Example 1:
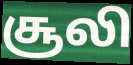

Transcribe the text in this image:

சூலி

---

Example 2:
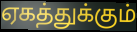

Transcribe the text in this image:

ஏகத்துக்கும்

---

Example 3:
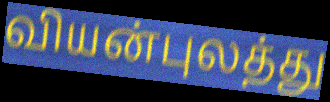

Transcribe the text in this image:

வியன்புலத்து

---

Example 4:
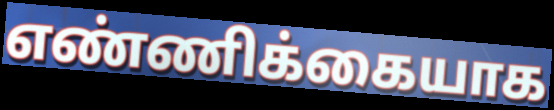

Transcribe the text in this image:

எண்ணிக்கையாக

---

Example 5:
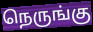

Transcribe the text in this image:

நெருங்கு